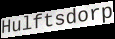
Hulftsdorp